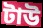
টাউ